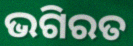
ଭଗିରତ